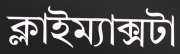
ক্লাইম্যাক্সটা